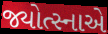
જ્યોત્સ્નાએ